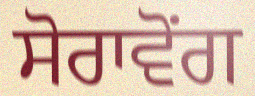
ਸੋਰਾਵੋਂਗ